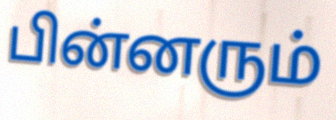
பின்னரும்